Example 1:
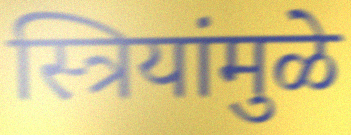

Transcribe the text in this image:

स्त्रियांमुळे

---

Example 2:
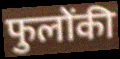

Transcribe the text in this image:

फुलोंकी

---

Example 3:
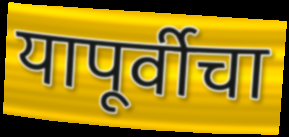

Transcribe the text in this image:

यापूर्वीचा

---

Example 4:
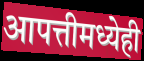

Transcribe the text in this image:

आपत्तीमध्येही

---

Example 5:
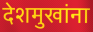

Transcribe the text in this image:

देशमुखांना